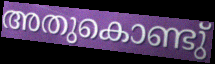
അതുകൊണ്ടു്